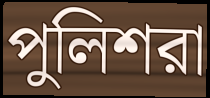
পুলিশরা